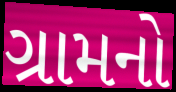
ગ્રામનો